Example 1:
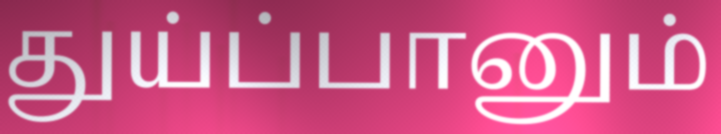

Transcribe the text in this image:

துய்ப்பானும்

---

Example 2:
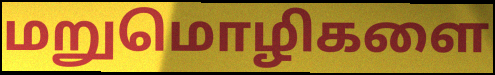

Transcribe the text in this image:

மறுமொழிகளை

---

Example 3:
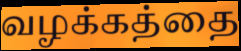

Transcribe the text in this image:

வழக்கத்தை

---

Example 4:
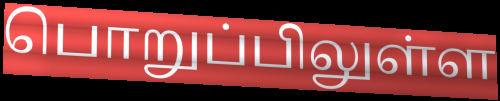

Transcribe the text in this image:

பொறுப்பிலுள்ள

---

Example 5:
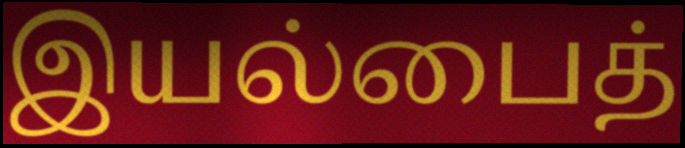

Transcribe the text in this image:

இயல்பைத்